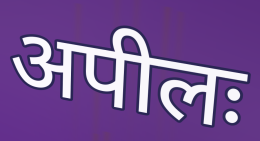
अपीलः